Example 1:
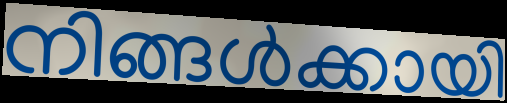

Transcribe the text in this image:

നിങ്ങൾക്കായി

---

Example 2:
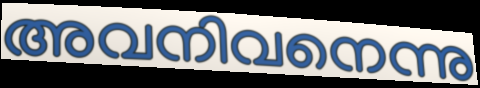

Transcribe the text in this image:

അവനിവനെന്നു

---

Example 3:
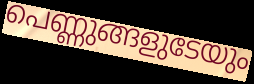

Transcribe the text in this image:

പെണ്ണുങ്ങളുടേയും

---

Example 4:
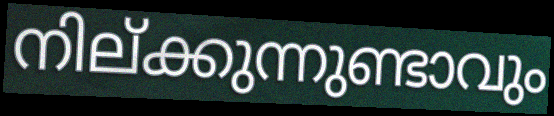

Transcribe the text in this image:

നില്ക്കുന്നുണ്ടാവും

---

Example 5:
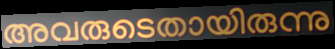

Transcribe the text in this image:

അവരുടെതായിരുന്നു